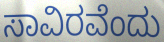
ಸಾವಿರವೆಂದು